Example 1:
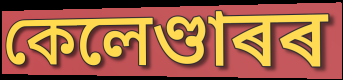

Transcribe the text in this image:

কেলেণ্ডাৰৰ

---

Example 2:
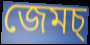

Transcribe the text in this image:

জেমচ্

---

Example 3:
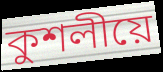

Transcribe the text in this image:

কুশলীয়ে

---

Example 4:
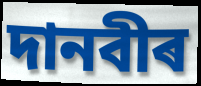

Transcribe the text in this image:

দানবীৰ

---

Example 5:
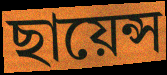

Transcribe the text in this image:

ছায়েন্স